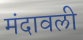
मंदावली